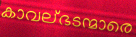
കാവല്ഭടന്മാരെ